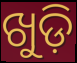
ଖୁଡ଼ି